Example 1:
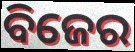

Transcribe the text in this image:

ବିଜେର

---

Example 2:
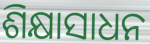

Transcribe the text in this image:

ଶିକ୍ଷାସାଧନ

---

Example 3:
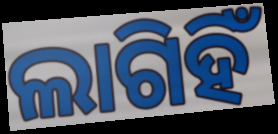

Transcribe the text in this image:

ଲାଗିହିଁ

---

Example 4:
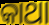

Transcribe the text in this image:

କାଥା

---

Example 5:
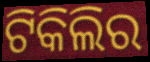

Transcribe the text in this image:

ଟିକିଲିର